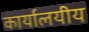
कार्यालयीय